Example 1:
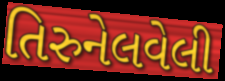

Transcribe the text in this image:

તિરુનેલવેલી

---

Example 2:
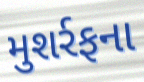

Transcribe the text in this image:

મુશર્રફના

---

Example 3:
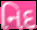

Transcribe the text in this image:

નિદ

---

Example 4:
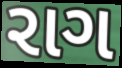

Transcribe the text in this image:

રાગ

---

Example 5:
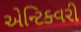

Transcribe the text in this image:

એન્ટિક્વરી